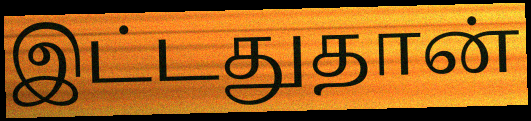
இட்டதுதான்